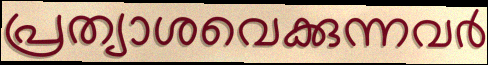
പ്രത്യാശവെക്കുന്നവർ